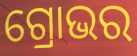
ଗ୍ରୋଭର